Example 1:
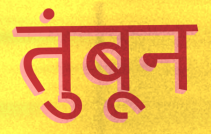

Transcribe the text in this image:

तुंबून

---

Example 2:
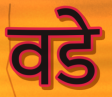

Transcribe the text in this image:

वडे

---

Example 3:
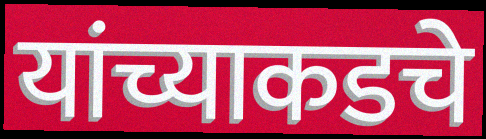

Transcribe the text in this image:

यांच्याकडचे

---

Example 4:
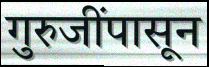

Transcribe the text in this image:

गुरुजींपासून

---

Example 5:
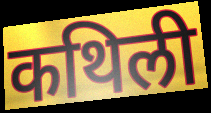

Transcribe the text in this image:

कथिली